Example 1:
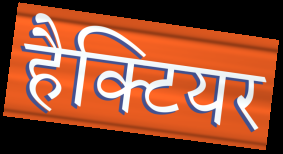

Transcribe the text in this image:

हैक्टियर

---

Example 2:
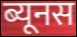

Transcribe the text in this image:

ब्यूनस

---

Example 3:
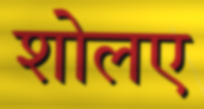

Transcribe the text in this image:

शोलए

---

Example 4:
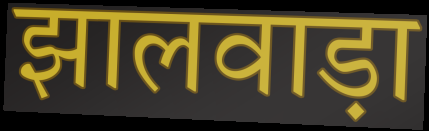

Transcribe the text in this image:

झालवाड़ा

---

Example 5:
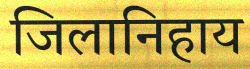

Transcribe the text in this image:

जिलानिहाय